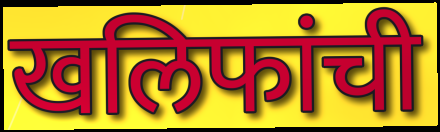
खलिफांची